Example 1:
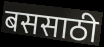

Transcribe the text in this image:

बससाठी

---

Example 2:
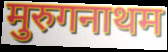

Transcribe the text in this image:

मुरुगनाथम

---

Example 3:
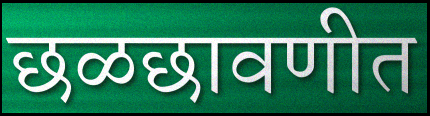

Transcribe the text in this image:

छळछावणीत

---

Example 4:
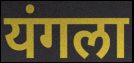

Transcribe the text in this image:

यंगला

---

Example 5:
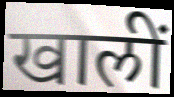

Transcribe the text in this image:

खालीं